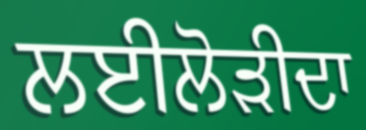
ਲਈਲੋੜੀਦਾ